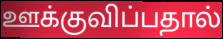
ஊக்குவிப்பதால்